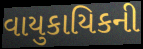
વાયુકાયિકની